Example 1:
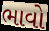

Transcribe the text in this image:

ભાવો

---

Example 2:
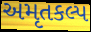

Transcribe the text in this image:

અમૃતકલ્પ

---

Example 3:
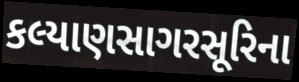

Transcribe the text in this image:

કલ્યાણસાગરસૂરિના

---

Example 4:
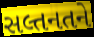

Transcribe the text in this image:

સલ્તનતને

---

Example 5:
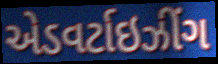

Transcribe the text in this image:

એડવર્ટાઇઝીંગ